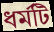
ধর্মটি